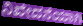
ನಿವೇದನೆಯಾಗಿ